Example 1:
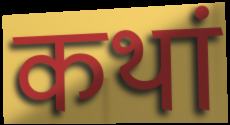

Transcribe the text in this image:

कथां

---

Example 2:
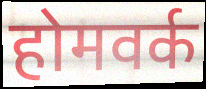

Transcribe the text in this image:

होमवर्क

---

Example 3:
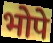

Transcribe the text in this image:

भोपे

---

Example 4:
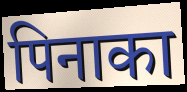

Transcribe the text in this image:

पिनाका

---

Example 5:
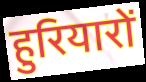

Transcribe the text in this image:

हुरियारों